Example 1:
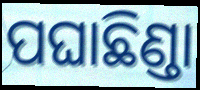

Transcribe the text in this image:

ପଘାଛିଣ୍ଡା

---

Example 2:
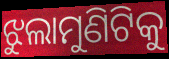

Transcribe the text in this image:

ଝୁଲାମୁଣିଟିକୁ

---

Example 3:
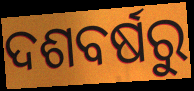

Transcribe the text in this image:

ଦଶବର୍ଷରୁ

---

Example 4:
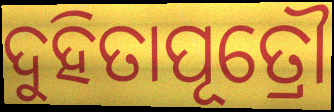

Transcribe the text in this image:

ଦୁହିତାପୂତ୍ରୌ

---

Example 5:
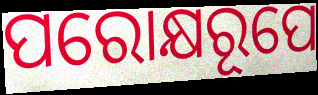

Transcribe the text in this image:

ପରୋକ୍ଷରୂପେ